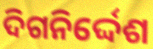
ଦିଗନିର୍ଦ୍ଦେଶ